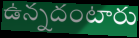
ఉన్నదంటారు